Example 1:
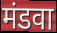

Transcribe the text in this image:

मंडवा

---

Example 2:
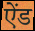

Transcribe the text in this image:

ऐंड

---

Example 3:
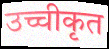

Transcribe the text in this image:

उच्चीकृत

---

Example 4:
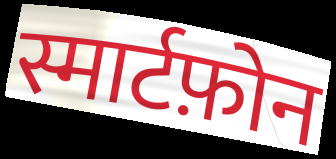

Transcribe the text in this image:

स्मार्टफ़ोन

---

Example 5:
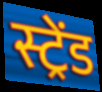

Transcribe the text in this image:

स्ट्रेंड